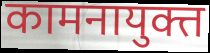
कामनायुक्त